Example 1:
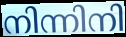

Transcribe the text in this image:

നിന്നിനി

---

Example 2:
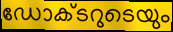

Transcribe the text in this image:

ഡോക്ടറുടെയും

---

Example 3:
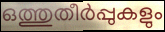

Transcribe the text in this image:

ഒത്തുതീർപ്പുകളും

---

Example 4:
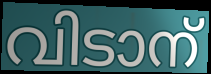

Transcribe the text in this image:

വിടാന്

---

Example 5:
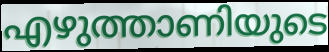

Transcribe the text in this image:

എഴുത്താണിയുടെ